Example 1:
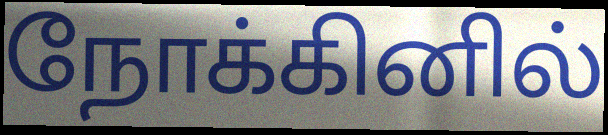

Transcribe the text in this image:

நோக்கினில்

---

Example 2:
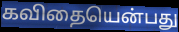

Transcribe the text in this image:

கவிதையென்பது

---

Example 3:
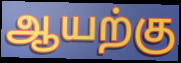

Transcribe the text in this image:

ஆயற்கு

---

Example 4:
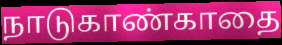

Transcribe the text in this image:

நாடுகாண்காதை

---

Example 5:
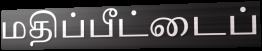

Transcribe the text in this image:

மதிப்பீட்டைப்